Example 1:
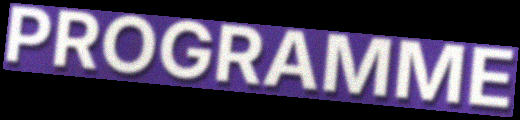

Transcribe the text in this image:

PROGRAMME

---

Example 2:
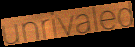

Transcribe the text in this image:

unrivaled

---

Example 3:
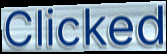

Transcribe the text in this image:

Clicked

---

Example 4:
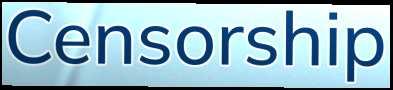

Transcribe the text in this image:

Censorship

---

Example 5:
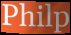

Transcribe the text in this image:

Philp